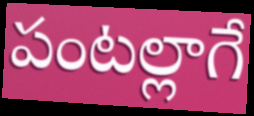
పంటల్లాగే